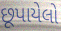
છૂપાયેલો